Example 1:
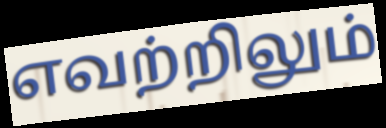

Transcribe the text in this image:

எவற்றிலும்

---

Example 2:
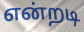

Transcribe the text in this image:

என்றடி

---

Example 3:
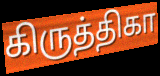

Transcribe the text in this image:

கிருத்திகா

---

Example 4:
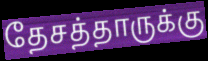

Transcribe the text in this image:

தேசத்தாருக்கு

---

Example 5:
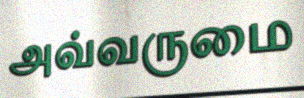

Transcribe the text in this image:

அவ்வருமை